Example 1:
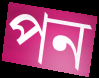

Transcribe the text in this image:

পন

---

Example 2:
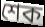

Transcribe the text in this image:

শেক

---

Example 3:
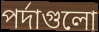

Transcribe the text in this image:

পর্দাগুলো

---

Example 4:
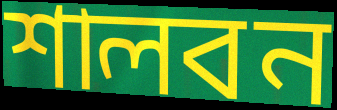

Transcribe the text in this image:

শালবন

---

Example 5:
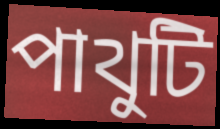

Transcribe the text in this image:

পাথুটি